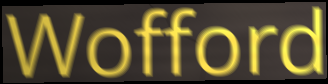
Wofford